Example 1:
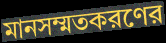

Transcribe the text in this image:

মানসম্মতকরণের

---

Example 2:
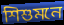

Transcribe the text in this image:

শিশুমনে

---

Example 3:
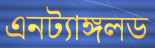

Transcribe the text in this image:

এনট্যাঙ্গলড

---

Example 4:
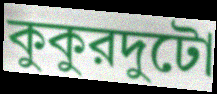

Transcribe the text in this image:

কুকুরদুটো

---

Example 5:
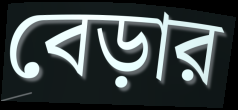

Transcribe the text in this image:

বেড়ার